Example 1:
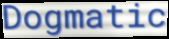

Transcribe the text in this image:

Dogmatic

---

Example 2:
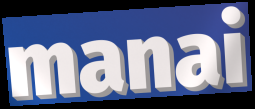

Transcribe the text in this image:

manai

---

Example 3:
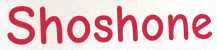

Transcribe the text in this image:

Shoshone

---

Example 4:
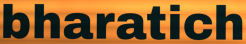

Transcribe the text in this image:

bharatich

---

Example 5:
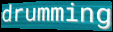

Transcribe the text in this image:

drumming